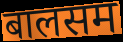
बालसम